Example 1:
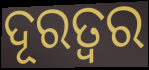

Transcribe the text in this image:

ଦୂରତ୍ଵର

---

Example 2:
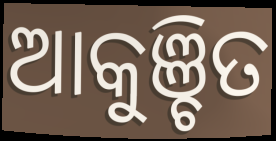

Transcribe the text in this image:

ଆକୁଞ୍ଚିତ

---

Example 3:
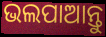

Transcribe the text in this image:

ଭଲପାଆନ୍ତୁ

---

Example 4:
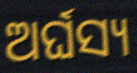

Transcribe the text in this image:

ଅର୍ଘସ୍ୟ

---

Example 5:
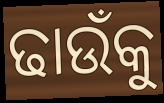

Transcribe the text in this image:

ଢାଉଁକୁ